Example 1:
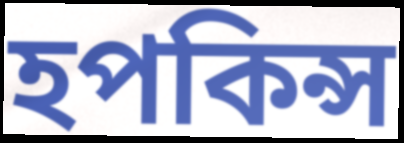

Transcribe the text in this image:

হপকিন্স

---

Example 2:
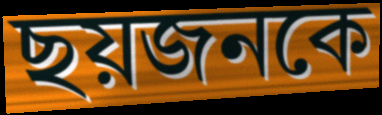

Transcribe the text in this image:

ছয়জনকে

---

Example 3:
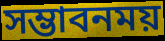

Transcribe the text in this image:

সম্ভাবনময়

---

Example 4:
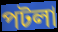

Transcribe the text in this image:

পটলা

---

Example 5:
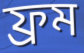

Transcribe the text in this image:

ফ্রম